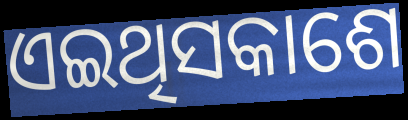
ଏଇଥିସକାଶେ